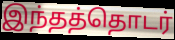
இந்தத்தொடர்